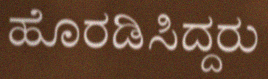
ಹೊರಡಿಸಿದ್ದರು